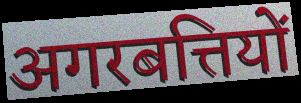
अगरबत्तियों